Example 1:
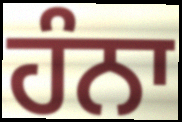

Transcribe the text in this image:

ਹੰਨਾ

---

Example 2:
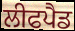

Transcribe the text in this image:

ਲੀਫਪੈਡ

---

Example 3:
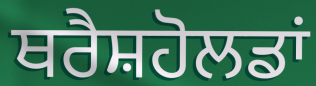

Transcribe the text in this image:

ਥਰੈਸ਼ਹੋਲਡਾਂ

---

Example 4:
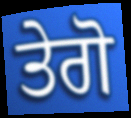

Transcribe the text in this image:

ਤੇਗੋ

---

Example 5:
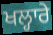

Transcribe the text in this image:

ਖਲ੍ਹਾਰੇ